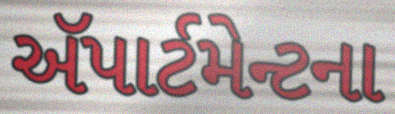
ઍપાર્ટમેન્ટના